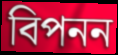
বিপনন